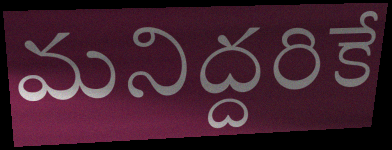
మనిద్దరికే